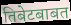
तिबेटबाबत